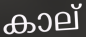
കാല്